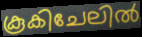
കൂകിചേലിൽ